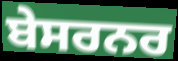
ਬੇਸਰਨਰ